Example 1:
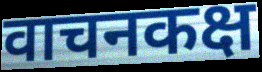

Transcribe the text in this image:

वाचनकक्ष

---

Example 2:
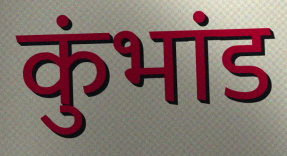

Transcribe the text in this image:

कुंभांड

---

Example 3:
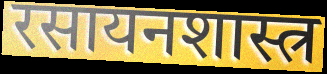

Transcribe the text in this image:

रसायनशास्त्र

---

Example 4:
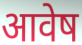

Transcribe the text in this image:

आवेष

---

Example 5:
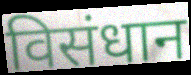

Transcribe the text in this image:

विसंधान